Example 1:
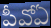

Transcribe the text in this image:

పీవోఏ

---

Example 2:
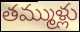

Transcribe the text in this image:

తమ్ముళ్లు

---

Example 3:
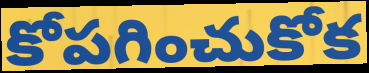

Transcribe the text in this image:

కోపగించుకోక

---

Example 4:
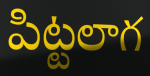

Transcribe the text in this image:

పిట్టలాగ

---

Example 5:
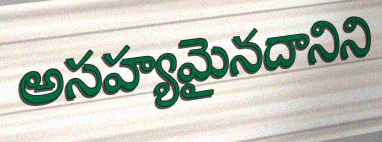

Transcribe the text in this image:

అసహ్యమైనదానిని